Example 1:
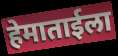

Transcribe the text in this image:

हेमाताईला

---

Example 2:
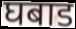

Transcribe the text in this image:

घबाड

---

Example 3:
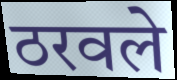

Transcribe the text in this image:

ठरवले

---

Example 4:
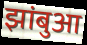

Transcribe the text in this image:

झांबुआ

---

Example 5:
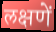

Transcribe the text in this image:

लक्षणें